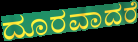
ದೂರವಾದರೆ